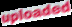
uploaded